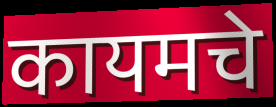
कायमचे